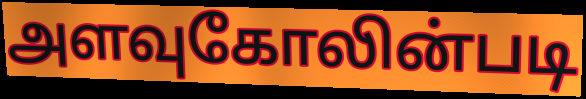
அளவுகோலின்படி